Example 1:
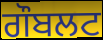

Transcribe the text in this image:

ਗੌਬਲਟ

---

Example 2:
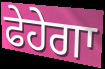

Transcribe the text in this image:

ਫੇਹੇਗਾ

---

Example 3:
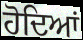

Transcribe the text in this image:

ਹੋਦਿਆਂ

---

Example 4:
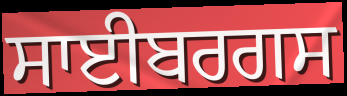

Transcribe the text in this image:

ਸਾਈਬਰਗਸ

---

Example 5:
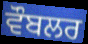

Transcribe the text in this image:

ਵੌਬਲਰ